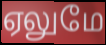
ஏலுமே